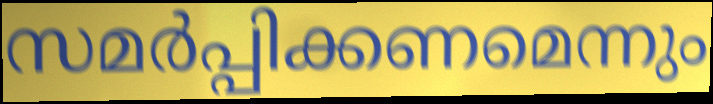
സമർപ്പിക്കണമെന്നും